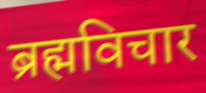
ब्रह्मविचार